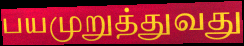
பயமுறுத்துவது